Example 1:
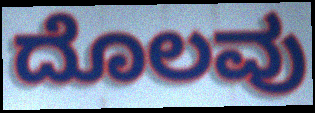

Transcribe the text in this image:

ದೊಲವು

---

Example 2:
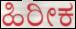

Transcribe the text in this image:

ಹಿರೀಕ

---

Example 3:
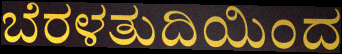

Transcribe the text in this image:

ಬೆರಳತುದಿಯಿಂದ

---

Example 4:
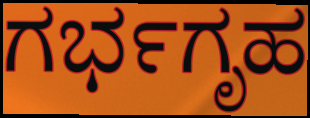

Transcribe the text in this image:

ಗರ್ಭಗೃಹ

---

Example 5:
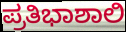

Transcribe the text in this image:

ಪ್ರತಿಭಾಶಾಲಿ